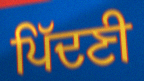
ਪਿੱਦਣੀ